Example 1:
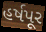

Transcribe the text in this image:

હર્ષપૂર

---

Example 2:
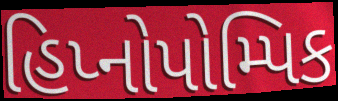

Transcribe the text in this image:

હિપ્નોપોમ્પિક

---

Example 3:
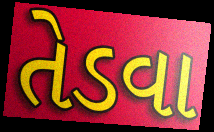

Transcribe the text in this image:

તેડવા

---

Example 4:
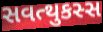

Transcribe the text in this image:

સવત્થુકસ્સ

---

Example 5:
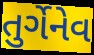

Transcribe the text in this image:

તુર્ગેનેવ